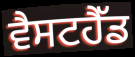
ਵੈਸਟਹੈੱਡ